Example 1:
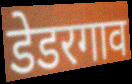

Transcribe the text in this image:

डेडरगाव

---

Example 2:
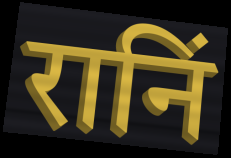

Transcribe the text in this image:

रानिं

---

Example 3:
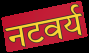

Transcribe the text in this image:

नटवर्य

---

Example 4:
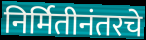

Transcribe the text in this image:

निर्मितीनंतरचे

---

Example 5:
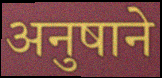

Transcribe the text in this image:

अनुषाने